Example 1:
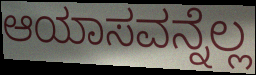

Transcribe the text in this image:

ಆಯಾಸವನ್ನೆಲ್ಲ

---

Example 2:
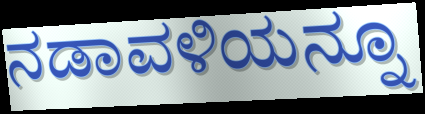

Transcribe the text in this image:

ನಡಾವಳಿಯನ್ನೂ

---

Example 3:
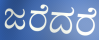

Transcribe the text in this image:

ಜರೆದರೆ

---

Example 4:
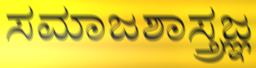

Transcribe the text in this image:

ಸಮಾಜಶಾಸ್ತ್ರಜ್ಞ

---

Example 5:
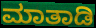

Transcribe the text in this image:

ಮಾತಾಡಿ